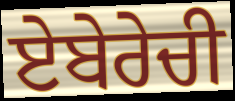
ਏਬੇਰੇਚੀ